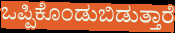
ಒಪ್ಪಿಕೊಂಡುಬಿಡುತ್ತಾರೆ